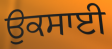
ਉਕਸਾਈ